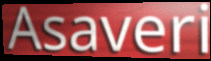
Asaveri